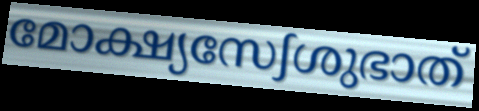
മോക്ഷ്യസേഽശുഭാത്